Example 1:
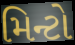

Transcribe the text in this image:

મિન્ટો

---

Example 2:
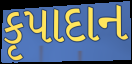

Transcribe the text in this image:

કૃપાદાન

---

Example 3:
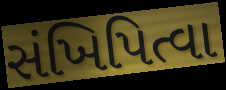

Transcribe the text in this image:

સંખિપિત્વા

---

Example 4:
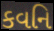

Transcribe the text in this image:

કવનિ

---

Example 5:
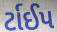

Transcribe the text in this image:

ર્ટાઈપ